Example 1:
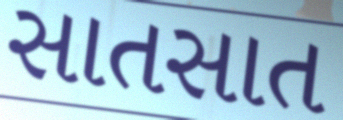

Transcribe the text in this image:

સાતસાત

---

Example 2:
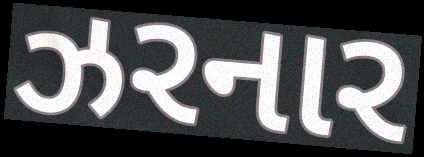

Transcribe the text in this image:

ઝરનાર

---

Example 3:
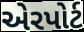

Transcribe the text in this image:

એરપોર્ટ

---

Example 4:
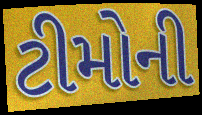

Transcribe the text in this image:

ટીમોની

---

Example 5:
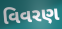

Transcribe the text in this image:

વિવરણ